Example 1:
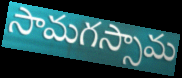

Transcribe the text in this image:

సామగస్సామ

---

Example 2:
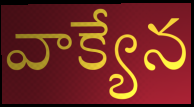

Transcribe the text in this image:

వాక్యేన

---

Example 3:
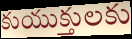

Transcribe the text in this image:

కుయుక్తులకు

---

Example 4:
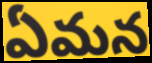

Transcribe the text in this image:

ఏమన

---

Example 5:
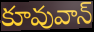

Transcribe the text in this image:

కూవువాన్